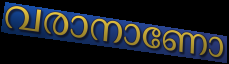
വരാനാണോ